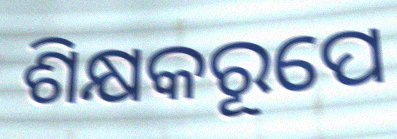
ଶିକ୍ଷକରୂପେ